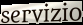
servizio